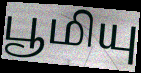
பூமியு